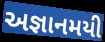
અજ્ઞાનમયી